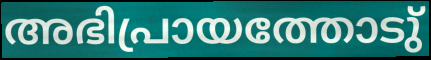
അഭിപ്രായത്തോടു്